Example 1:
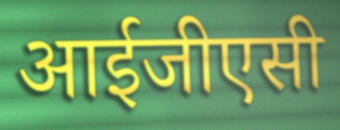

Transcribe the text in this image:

आईजीएसी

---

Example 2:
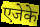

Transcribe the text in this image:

एजेके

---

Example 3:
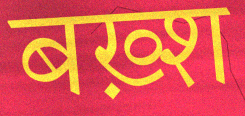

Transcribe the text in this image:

बख़्श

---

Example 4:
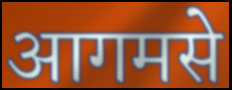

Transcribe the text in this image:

आगमसे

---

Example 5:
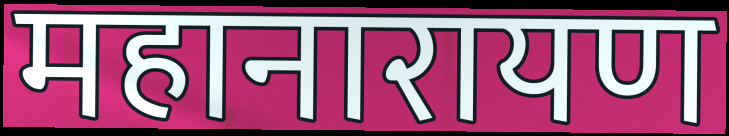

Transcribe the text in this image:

महानारायण